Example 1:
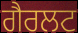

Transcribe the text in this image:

ਗੈਰਲਟ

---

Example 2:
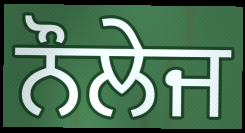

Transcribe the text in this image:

ਨੌਲੇਜ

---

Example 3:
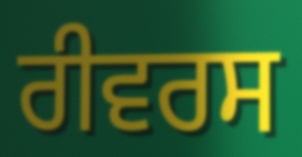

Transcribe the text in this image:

ਰੀਵਰਸ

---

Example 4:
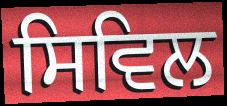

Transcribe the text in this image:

ਸਿਵਿਲ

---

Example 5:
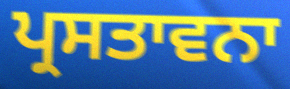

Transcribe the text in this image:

ਪ੍ਰਸਤਾਵਨਾ